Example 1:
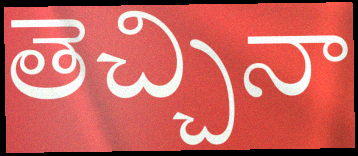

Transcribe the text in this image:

తెచ్చినా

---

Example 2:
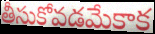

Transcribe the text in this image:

తీసుకోవడమేకాక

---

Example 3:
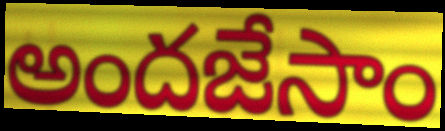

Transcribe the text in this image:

అందజేసాం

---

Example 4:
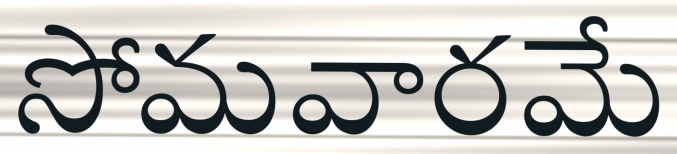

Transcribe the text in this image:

సోమవారమే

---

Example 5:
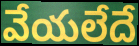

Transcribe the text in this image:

వేయలేదే